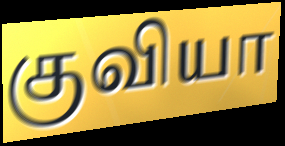
குவியா